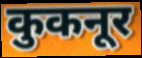
कुकनूर